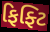
ફિફ્ટિ